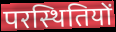
परस्थितियों